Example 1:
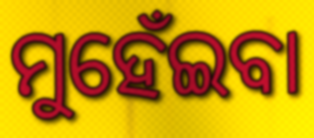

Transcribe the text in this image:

ମୁହେଁଇବା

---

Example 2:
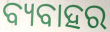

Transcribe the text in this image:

ବ୍ୟବାହର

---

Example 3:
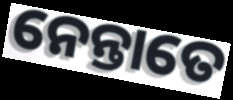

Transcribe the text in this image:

ନେନ୍ତାତେ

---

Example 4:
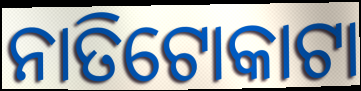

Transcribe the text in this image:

ନାତିଟୋକାଟା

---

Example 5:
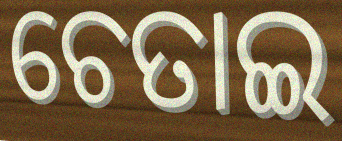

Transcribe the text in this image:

ଚେତାଇ